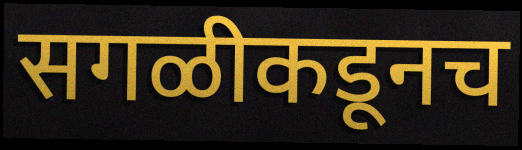
सगळीकडूनच